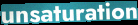
unsaturation